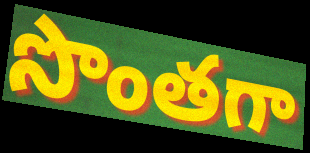
సొంతగా